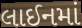
લાઈનમાં